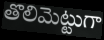
తొలిమెట్టుగా